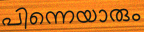
പിന്നെയാരും